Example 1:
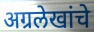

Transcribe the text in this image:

अग्रलेखांचे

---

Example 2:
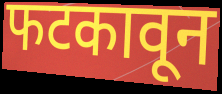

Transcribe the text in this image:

फटकावून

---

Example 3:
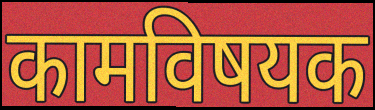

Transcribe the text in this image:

कामविषयक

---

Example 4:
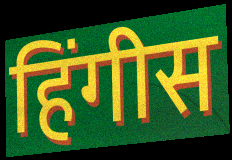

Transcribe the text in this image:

हिंगीस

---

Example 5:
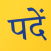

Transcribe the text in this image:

पदें